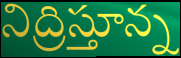
నిద్రిస్తూన్న